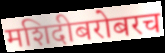
मशिदीबरोबरच